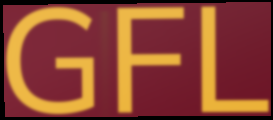
GFL